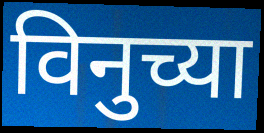
विनुच्या